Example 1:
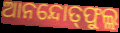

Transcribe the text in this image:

ଆନନ୍ଦୋତ୍‍ଫୁଲ୍ଲ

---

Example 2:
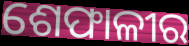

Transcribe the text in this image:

ଶେଫାଳୀର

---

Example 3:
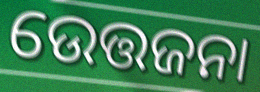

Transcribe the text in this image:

ଉେତ୍ତଜନା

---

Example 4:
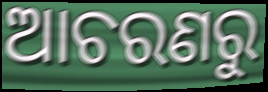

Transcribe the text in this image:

ଆଚରଣରୁ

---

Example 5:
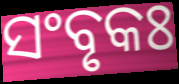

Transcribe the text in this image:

ସଂବୃକଃ